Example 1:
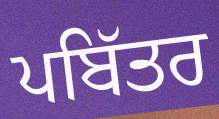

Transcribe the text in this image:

ਪਬਿੱਤਰ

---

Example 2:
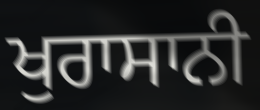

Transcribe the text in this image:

ਖੁਰਾਸਾਨੀ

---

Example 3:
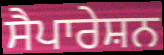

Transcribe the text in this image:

ਸੈਪਾਰੇਸ਼ਨ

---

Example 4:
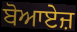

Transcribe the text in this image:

ਬੋਆਏਜ਼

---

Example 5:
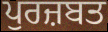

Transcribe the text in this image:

ਪੁਰਜ਼ਬਤ